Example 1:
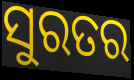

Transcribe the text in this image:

ସୁରତର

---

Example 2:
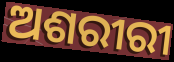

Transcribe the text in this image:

ଅଶରୀରୀ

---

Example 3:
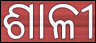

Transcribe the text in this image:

ଶାଳୀ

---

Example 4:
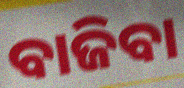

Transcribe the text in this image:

ବାଜିବା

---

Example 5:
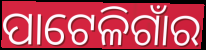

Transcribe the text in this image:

ପାଟେଳିଗାଁର